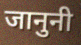
जानुनी